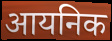
आयनिक